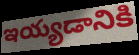
ఇయ్యడానికి